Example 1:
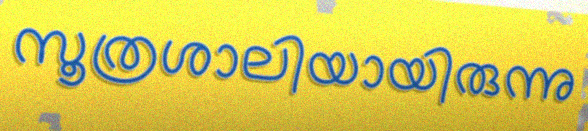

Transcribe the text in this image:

സൂത്രശാലിയായിരുന്നു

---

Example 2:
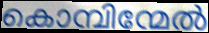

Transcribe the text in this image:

കൊമ്പിന്മേൽ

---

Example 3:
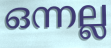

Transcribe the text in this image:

ഒന്നല്ല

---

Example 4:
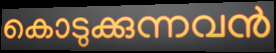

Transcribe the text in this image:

കൊടുക്കുന്നവൻ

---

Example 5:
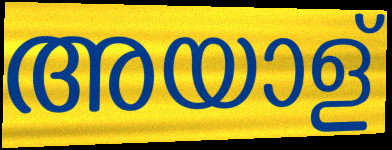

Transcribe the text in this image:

അയാള്